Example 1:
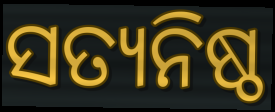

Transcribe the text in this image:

ସତ୍ୟନିଷ୍ଠ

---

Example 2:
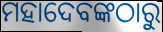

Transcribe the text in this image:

ମହାଦେବଙ୍କଠାରୁ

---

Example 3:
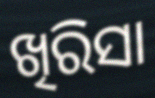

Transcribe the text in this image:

ଖିରିସା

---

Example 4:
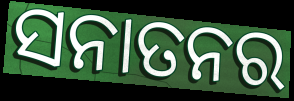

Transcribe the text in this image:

ସନାତନର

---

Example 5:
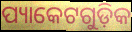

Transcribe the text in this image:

ପ୍ୟାକେଟଗୁଡ଼ିକ